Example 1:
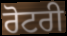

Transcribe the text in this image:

ਰੋਟਰੀ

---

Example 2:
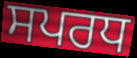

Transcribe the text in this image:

ਸਪਰਧ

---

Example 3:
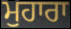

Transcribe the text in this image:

ਮੁਹਾਰਾ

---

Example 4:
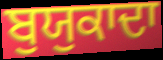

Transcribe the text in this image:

ਬੁਯੁਕਾਦਾ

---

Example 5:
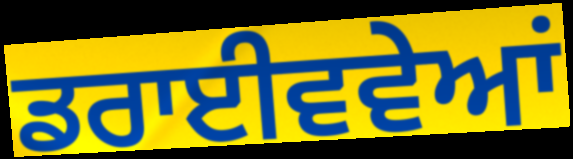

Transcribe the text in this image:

ਡਰਾਈਵਵੇਆਂ